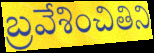
బ్రవేశించితిని